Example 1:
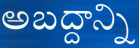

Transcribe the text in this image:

అబద్దాన్ని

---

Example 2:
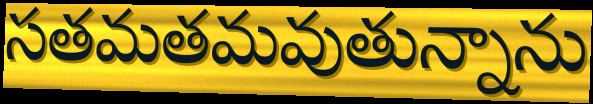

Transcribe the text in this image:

సతమతమవుతున్నాను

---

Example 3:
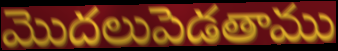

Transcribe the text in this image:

మొదలుపెడతాము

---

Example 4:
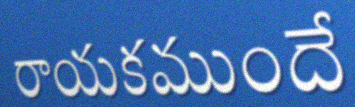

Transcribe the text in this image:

రాయకముందే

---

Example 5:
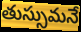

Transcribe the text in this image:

తుస్సుమనే